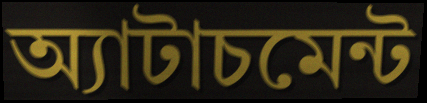
অ্যাটাচমেন্ট